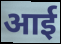
आई